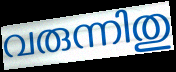
വരുന്നിതു